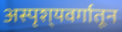
अस्पृश्यवर्गातून